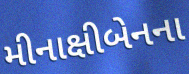
મીનાક્ષીબેનના